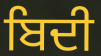
ਬਿਦੀ